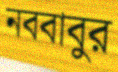
নববাবুর